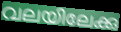
വലയിലേക്കു